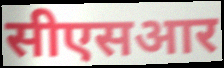
सीएसआर